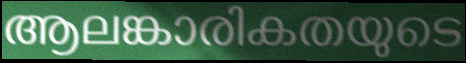
ആലങ്കാരികതയുടെ